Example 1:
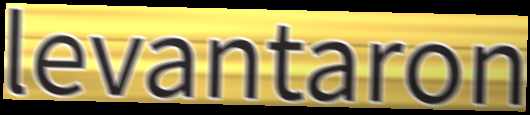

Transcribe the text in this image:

levantaron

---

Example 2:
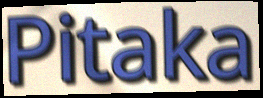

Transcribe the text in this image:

Pitaka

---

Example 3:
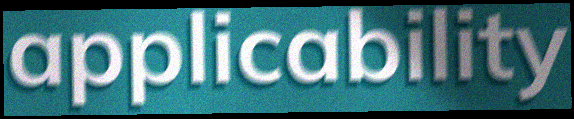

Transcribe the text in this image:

applicability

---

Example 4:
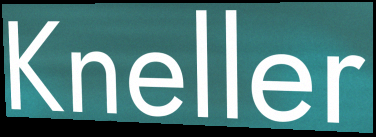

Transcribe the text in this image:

Kneller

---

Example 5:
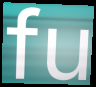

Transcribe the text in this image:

fu